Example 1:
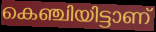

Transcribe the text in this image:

കെഞ്ചിയിട്ടാണ്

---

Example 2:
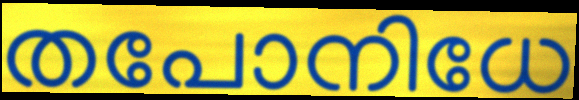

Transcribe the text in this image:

തപോനിധേ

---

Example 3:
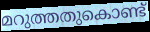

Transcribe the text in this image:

മറുത്തതുകൊണ്ട്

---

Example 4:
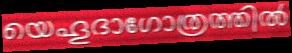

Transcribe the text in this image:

യെഹൂദാഗോത്രത്തിൽ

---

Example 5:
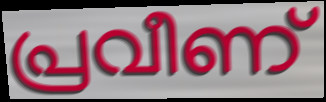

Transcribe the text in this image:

പ്രവീണ്